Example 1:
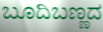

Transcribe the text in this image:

ಬೂದಿಬಣ್ಣದ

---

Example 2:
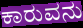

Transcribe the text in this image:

ಕಾರುವನು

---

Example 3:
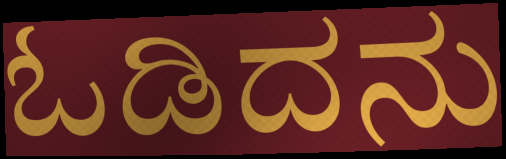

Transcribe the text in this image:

ಓಡಿದನು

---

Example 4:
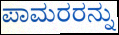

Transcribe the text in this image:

ಪಾಮರರನ್ನು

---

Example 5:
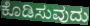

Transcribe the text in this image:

ಕೊಡಿಸುವುದು